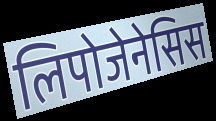
लिपोजेनेसिस